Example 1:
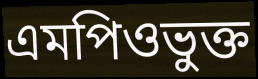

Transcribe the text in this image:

এমপিওভুক্ত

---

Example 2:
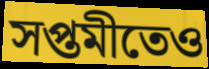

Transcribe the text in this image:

সপ্তমীতেও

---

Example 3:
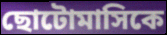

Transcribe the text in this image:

ছোটোমাসিকে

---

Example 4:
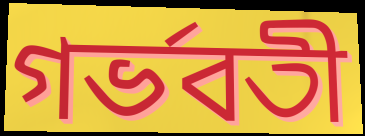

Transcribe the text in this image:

গর্ভবতী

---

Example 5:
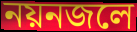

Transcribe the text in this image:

নয়নজলে